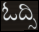
ಓದ್ಸಿ